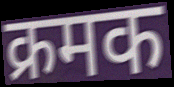
क्रमक